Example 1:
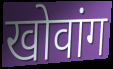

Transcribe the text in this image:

खोवांग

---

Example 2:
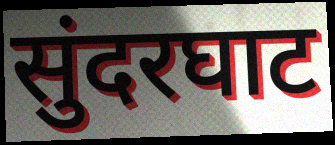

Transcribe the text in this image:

सुंदरघाट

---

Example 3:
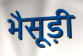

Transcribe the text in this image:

भैसूड़ी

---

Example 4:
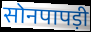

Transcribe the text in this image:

सोनपापड़ी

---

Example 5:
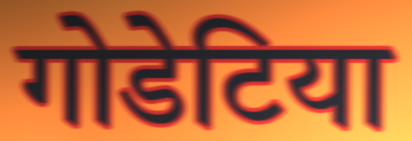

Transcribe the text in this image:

गोडेटिया